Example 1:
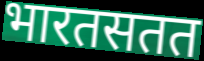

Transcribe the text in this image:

भारतसतत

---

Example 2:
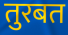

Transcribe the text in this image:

तुरबत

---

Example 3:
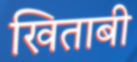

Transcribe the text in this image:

खिताबी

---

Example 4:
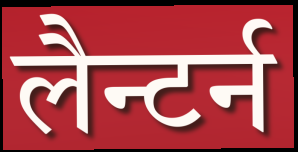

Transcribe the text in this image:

लैन्टर्न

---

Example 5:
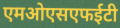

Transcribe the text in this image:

एमओएसएफईटी